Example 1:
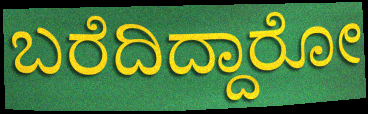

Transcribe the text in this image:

ಬರೆದಿದ್ದಾರೋ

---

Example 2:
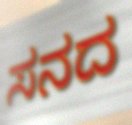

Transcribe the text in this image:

ಸನದ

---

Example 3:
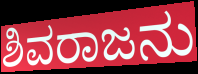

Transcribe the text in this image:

ಶಿವರಾಜನು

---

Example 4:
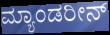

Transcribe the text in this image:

ಮ್ಯಾಂಡರೀನ್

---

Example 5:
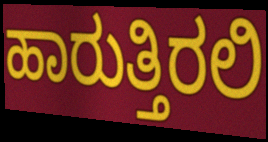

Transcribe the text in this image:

ಹಾರುತ್ತಿರಲಿ